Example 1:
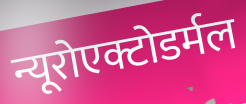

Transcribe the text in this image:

न्यूरोएक्टोडर्मल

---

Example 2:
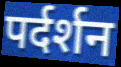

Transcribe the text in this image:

पर्दर्शन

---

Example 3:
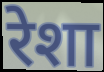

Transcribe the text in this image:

रेशा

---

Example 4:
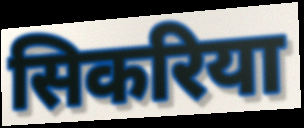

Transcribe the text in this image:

सिकरिया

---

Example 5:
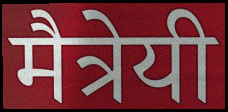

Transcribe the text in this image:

मैत्रेयी